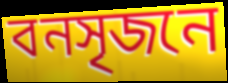
বনসৃজনে